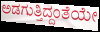
ಅಡಗುತ್ತಿದ್ದಂತೆಯೇ